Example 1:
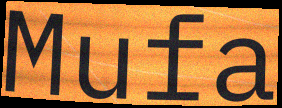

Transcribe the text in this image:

Mufa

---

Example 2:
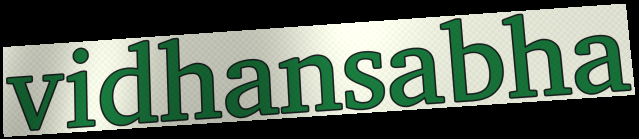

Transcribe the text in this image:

vidhansabha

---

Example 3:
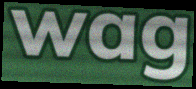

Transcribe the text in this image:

wag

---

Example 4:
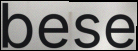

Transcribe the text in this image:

bese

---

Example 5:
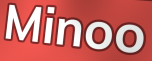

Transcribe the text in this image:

Minoo